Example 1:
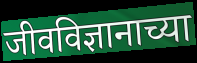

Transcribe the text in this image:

जीवविज्ञानाच्या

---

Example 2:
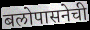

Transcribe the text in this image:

बलोपासनेची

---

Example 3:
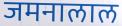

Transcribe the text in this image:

जमनालाल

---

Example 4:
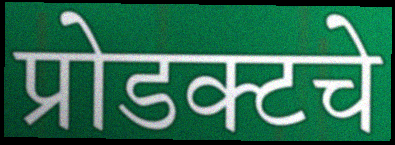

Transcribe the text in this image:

प्रोडक्टचे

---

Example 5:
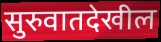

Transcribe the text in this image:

सुरुवातदेखील